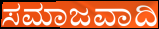
ಸಮಾಜವಾದಿ